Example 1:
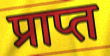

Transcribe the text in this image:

प्राप्‍त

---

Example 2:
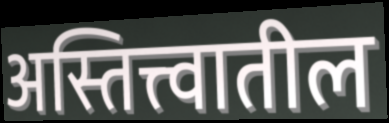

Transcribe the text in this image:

अस्तित्त्वातील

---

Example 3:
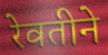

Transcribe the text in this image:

रेवतीने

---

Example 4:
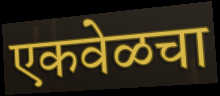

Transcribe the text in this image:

एकवेळचा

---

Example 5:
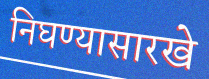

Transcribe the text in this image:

निघण्यासारखे